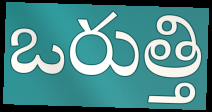
ఒరుత్తి